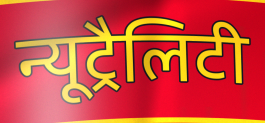
न्यूट्रैलिटी